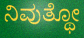
ನಿವುತ್ಥೋ